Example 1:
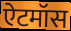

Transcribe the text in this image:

ऐटमॉस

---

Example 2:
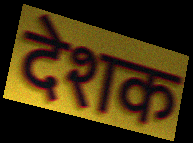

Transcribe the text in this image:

देशक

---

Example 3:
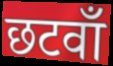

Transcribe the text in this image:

छटवाँ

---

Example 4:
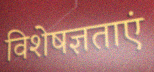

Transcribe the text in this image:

विशेषज्ञताएं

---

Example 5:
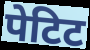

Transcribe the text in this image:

पेटिट